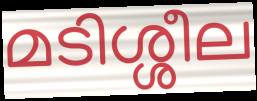
മടിശ്ശീല